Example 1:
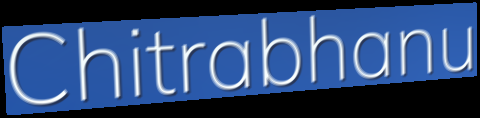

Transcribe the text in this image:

Chitrabhanu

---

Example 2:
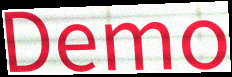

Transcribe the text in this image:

Demo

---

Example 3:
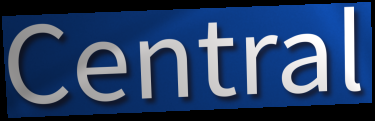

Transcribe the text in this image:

Central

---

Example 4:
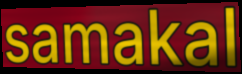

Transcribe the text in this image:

samakal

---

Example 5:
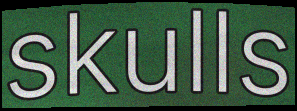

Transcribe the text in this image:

skulls